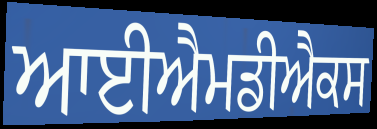
ਆਈਐਮਡੀਐਕਸ